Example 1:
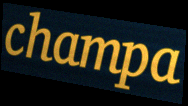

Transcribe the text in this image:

champa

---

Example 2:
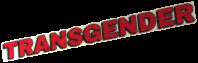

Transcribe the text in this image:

TRANSGENDER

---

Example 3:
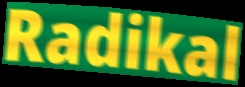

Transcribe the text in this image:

Radikal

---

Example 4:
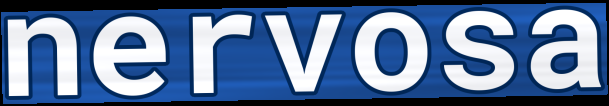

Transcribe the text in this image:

nervosa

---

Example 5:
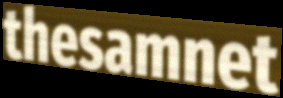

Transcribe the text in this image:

thesamnet